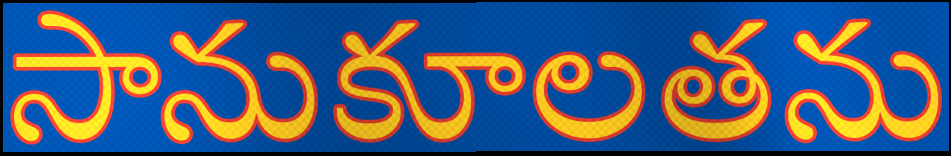
సానుకూలతను